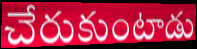
చేరుకుంటాడు